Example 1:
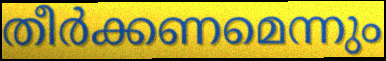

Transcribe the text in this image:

തീർക്കണമെന്നും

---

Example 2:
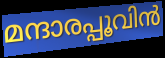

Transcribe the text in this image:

മന്ദാരപ്പൂവിൻ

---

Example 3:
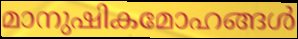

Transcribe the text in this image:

മാനുഷികമോഹങ്ങൾ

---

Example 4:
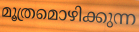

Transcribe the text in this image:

മൂത്രമൊഴിക്കുന്ന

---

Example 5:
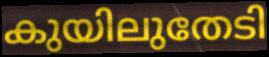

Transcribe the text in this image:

കുയിലുതേടി